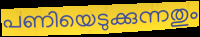
പണിയെടുക്കുന്നതും